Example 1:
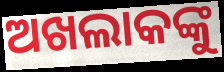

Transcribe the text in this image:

ଅଖଲାକଙ୍କୁ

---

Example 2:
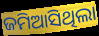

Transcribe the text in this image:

ଜମିଆସିଥିଲା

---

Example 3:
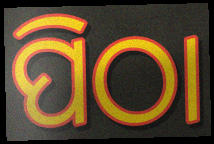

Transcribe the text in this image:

ପିଠା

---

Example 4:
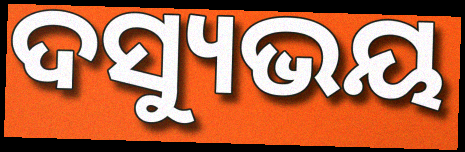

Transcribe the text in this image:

ଦସ୍ୟୁଭୟ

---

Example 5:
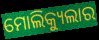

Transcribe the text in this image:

ମୋଲିକ୍ୟୁଲାର